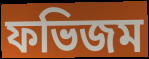
ফভিজম